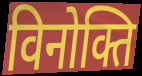
विनोक्ति